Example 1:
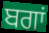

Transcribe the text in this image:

ਬਗਾਂ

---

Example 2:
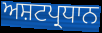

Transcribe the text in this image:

ਅਸ਼ਟਪ੍ਰਧਾਨ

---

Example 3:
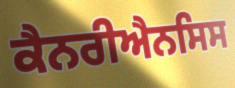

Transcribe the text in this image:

ਕੈਨਰੀਐਨਸਿਸ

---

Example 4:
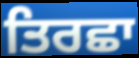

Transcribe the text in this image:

ਤਿਰਛਾ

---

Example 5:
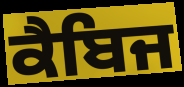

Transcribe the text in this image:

ਕੈਬਿਜ